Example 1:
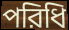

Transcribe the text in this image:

পরিধি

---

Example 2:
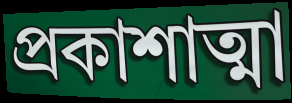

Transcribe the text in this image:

প্রকাশাত্মা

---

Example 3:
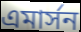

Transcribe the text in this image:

এমার্সন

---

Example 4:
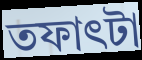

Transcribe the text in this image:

তফাৎটা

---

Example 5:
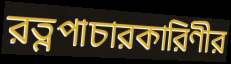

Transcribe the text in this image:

রত্নপাচারকারিণীর